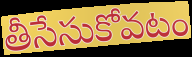
తీసేసుకోవటం